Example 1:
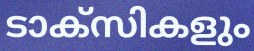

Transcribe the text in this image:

ടാക്സികളും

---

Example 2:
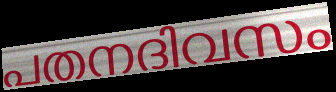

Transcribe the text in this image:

പതനദിവസം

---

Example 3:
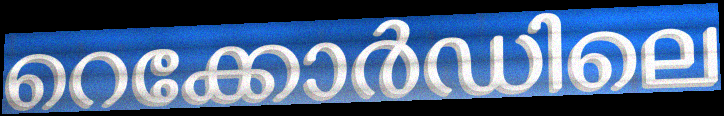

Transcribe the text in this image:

റെക്കോർഡിലെ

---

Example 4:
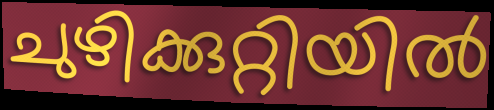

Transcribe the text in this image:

ചുഴിക്കുറ്റിയിൽ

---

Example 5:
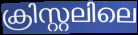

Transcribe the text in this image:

ക്രിസ്റ്റലിലെ